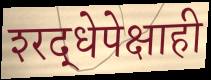
श्रद्धेपेक्षाही